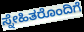
ಸ್ನೇಹಿತರೊಂದಿಗೆ